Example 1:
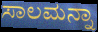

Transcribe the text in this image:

ಸಾಲಮನ್ನಾ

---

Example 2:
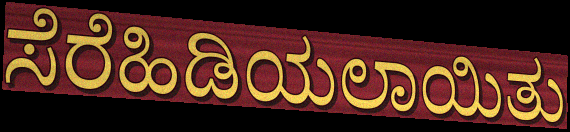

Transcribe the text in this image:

ಸೆರೆಹಿಡಿಯಲಾಯಿತು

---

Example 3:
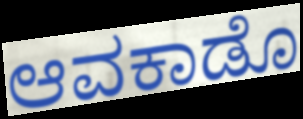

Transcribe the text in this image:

ಆವಕಾಡೊ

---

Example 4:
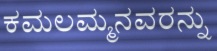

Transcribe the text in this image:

ಕಮಲಮ್ಮನವರನ್ನು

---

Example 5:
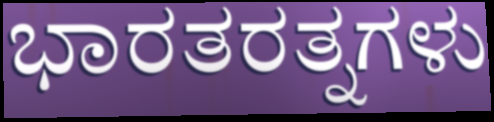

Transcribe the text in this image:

ಭಾರತರತ್ನಗಳು